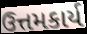
ઉત્તમકાર્ય